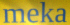
meka